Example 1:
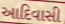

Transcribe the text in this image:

આદિવાસી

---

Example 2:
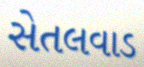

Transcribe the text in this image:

સેતલવાડ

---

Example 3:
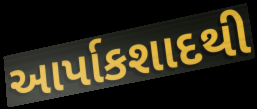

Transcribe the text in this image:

આર્પાકશાદથી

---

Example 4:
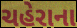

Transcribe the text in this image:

ચહેરાના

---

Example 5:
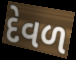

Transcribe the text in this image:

દેવળ